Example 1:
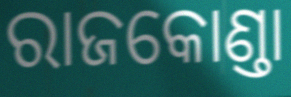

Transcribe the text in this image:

ରାଜକୋଣ୍ଡା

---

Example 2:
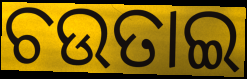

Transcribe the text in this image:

ଚଉତାଇ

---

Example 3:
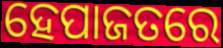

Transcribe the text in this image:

ହେପାଜତରେ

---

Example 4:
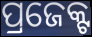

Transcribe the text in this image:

ପ୍ରଜେକ୍ଟ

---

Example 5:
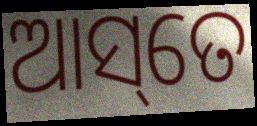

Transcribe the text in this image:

ଆସ୍‌ତେ